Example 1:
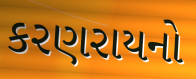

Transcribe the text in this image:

કરણરાયનો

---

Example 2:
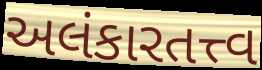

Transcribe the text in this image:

અલંકારતત્ત્વ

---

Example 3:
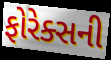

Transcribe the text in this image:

ફોરેક્સની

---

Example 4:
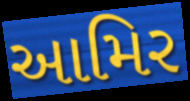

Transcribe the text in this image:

આમિર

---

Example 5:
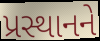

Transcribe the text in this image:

પ્રસ્થાનને